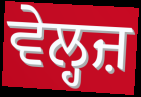
ਵੇਲ੍ਹਜ਼